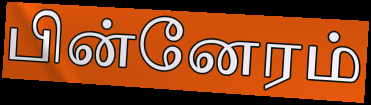
பின்னேரம்